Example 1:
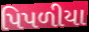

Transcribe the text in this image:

પિપળીયા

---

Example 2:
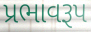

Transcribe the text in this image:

પ્રભાવરૂપ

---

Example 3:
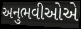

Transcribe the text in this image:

અનુભવીઓએ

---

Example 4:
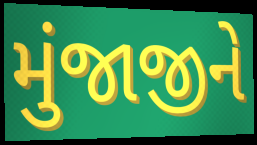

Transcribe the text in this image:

મુંજાજીને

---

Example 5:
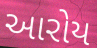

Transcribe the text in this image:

આરોય